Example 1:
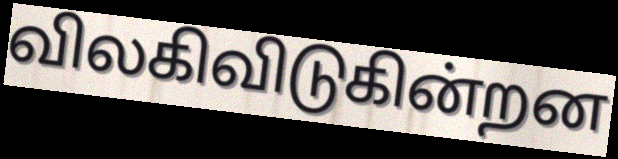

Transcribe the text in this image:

விலகிவிடுகின்றன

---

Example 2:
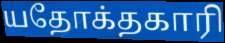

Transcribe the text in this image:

யதோக்தகாரி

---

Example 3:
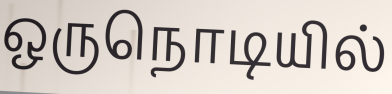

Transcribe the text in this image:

ஒருநொடியில்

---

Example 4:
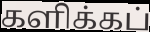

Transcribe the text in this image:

களிக்கப்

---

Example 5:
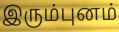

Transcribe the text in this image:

இரும்புனம்